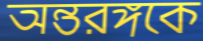
অন্তরঙ্গকে